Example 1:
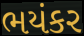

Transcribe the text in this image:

ભયંકર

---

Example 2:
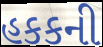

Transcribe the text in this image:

હકકની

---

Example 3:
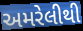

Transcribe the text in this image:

અમરેલીથી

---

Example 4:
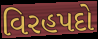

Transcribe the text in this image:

વિરહપદો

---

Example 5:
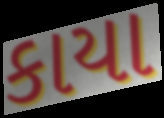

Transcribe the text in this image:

કાયા